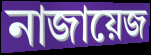
নাজায়েজ